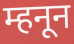
म्हनून